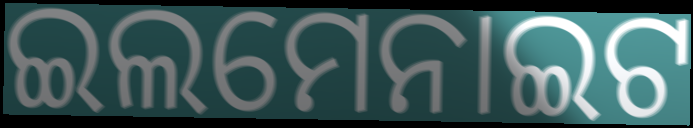
ଇଲମେନାଇଟ